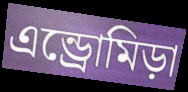
এন্ড্রোমিড়া